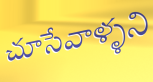
చూసేవాళ్ళని